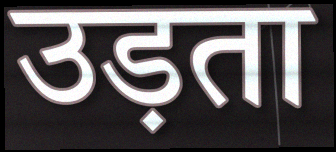
उड़ता